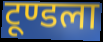
टूण्डला